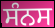
ਸੰਨਸ